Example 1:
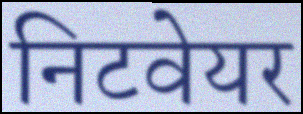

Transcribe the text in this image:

निटवेयर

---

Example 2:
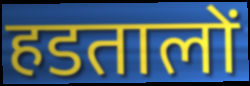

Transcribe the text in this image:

हडतालों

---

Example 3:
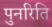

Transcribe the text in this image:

पुनरिति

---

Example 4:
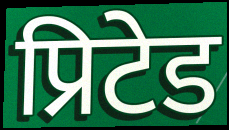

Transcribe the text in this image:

प्रिटेड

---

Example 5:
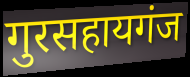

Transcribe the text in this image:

गुरसहायगंज